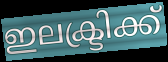
ഇലക്ട്രിക്ക്